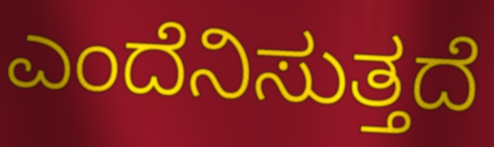
ಎಂದೆನಿಸುತ್ತದೆ